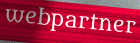
webpartner